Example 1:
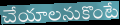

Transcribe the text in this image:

చేయాలనుకొంటే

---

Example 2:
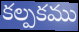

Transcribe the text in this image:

కల్పకము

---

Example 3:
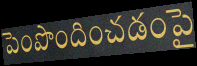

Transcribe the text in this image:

పెంపొందించడంపై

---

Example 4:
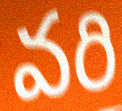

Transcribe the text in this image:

వరి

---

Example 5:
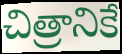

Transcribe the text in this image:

చిత్రానికే